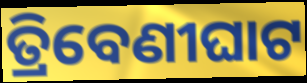
ତ୍ରିବେଣୀଘାଟ